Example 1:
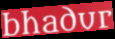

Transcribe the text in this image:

bhadur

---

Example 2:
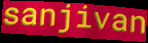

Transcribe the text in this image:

sanjivan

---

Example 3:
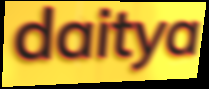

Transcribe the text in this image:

daitya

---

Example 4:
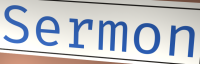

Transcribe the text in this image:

Sermon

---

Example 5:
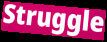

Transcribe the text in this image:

Struggle